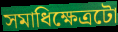
সমাধিক্ষেত্ৰটো